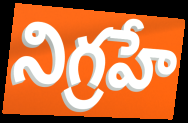
నిగ్రహే